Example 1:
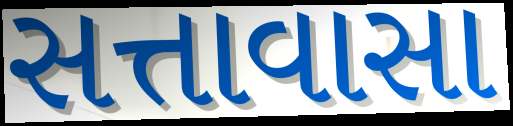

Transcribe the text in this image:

સત્તાવાસા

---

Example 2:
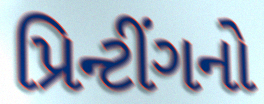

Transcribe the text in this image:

પ્રિન્ટીંગનો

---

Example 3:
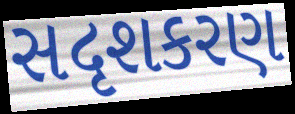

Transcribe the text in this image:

સદૃશકરણ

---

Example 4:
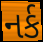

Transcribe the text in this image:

નર્ક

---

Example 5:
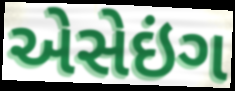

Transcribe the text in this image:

એસેઇંગ